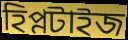
হিপ্নটাইজ